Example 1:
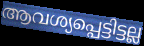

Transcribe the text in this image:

ആവശ്യപ്പെട്ടിട്ടല്ല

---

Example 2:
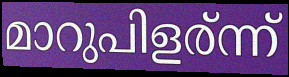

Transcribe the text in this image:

മാറുപിളര്ന്ന്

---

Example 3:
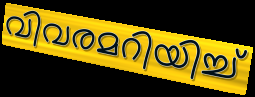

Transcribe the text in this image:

വിവരമറിയിച്ച്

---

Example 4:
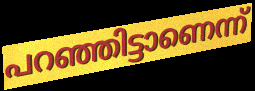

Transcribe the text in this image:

പറഞ്ഞിട്ടാണെന്ന്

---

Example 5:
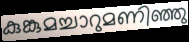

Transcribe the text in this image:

കുങ്കുമച്ചാറുമണിഞ്ഞു